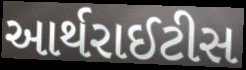
આર્થરાઈટીસ